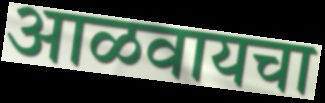
आळवायचा